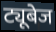
ट्यूबेज